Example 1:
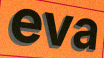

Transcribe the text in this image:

eva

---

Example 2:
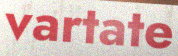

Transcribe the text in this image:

vartate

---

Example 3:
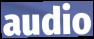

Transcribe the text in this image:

audio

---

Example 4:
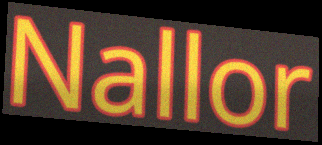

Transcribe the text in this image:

Nallor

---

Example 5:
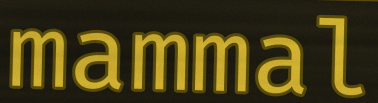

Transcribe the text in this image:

mammal